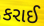
કરાઈ